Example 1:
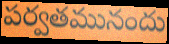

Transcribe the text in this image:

పర్వతమునందు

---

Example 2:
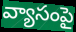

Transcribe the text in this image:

వ్యాసంపై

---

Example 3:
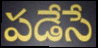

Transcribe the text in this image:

పడేసే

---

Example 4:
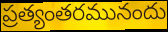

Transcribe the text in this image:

ప్రత్యంతరమునందు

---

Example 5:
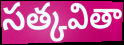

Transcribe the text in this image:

సత్కవితా